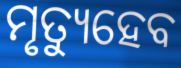
ମୃତ୍ୟୁହେବ